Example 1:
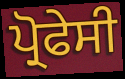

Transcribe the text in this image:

ਪ੍ਰੋਫੇਸੀ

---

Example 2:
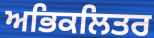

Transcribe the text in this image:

ਅਭਿਕਲਿਤਰ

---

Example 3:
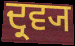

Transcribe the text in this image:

ਦ੍ਰਵ੍ਯ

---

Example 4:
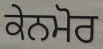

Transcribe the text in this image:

ਕੇਨਮੋਰ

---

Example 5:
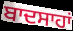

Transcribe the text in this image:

ਬਾਦਸਾਹਾਂ